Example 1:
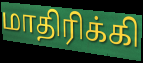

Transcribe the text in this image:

மாதிரிக்கி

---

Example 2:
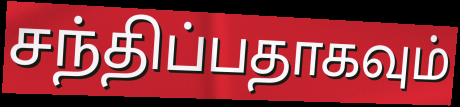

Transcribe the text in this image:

சந்திப்பதாகவும்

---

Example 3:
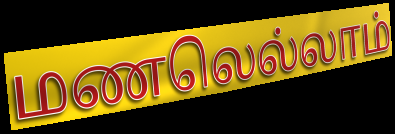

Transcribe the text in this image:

மணலெல்லாம்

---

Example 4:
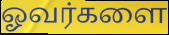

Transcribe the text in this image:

ஓவர்களை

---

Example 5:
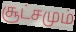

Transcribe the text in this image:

சூட்சமும்